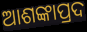
ଆଶଙ୍କାପ୍ରଦ